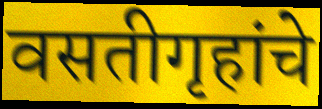
वसतीगृहांचे